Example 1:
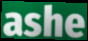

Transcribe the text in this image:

ashe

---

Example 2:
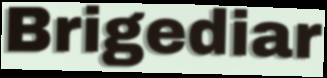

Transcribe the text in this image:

Brigediar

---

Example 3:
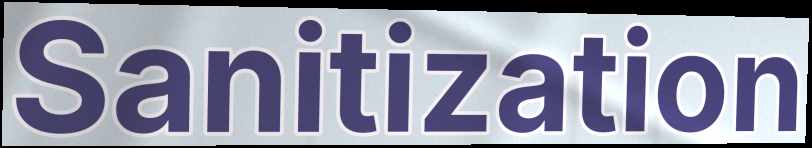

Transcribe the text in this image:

Sanitization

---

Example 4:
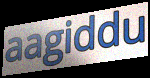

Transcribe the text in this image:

aagiddu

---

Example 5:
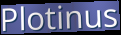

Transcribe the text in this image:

Plotinus